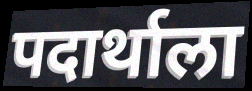
पदार्थाला